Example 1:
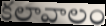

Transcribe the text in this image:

కలావాలం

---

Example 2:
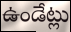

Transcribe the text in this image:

ఉండేట్లు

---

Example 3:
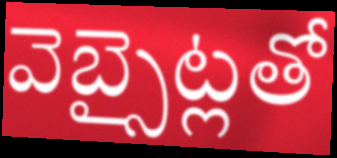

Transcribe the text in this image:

వెబ్సైట్లతో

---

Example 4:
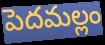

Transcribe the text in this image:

పెదమల్లం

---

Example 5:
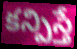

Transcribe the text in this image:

కన్పిస్తే